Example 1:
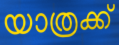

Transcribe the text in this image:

യാത്രക്ക്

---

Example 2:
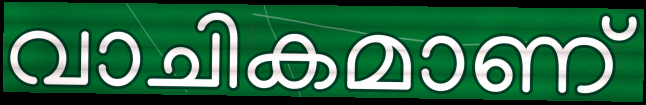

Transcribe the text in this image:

വാചികമാണ്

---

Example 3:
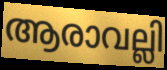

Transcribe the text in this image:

ആരാവല്ലി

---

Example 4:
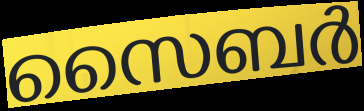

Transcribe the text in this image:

സൈബർ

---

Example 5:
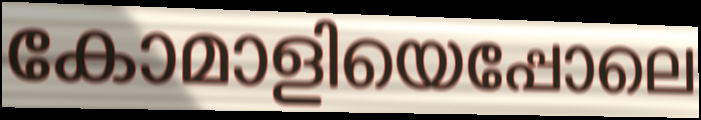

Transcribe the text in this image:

കോമാളിയെപ്പോലെ